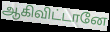
ஆகிவிட்டானே